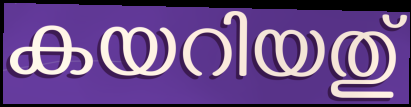
കയറിയതു്